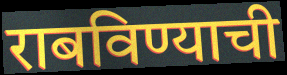
राबविण्याची